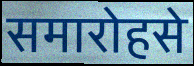
समारोहसे